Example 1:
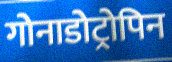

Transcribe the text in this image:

गोनाडोट्रोपिन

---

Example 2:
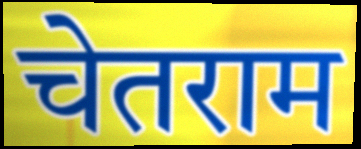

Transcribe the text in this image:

चेतराम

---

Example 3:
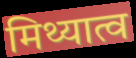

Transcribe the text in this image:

मिथ्‍यात्‍व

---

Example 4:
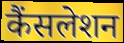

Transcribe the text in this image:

कैंसलेशन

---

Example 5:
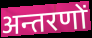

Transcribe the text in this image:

अन्तरणों